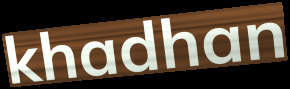
khadhan